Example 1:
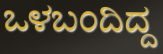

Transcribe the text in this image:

ಒಳಬಂದಿದ್ದ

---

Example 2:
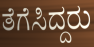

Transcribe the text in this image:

ತೆಗೆಸಿದ್ದರು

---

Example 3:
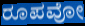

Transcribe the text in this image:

ರೂಪವೋ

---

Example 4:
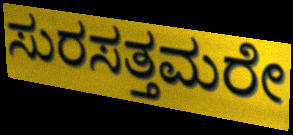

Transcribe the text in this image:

ಸುರಸತ್ತಮರೇ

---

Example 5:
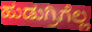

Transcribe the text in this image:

ಹುಡುಗ್ರಿಗೆಲ್ಲ